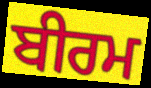
ਬੀਰਮ